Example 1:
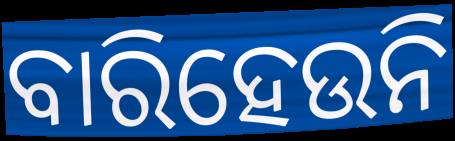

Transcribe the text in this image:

ବାରିହେଉନି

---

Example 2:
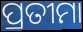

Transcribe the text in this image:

ପ୍ରତୀମା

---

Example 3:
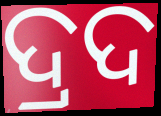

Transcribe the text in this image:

ଦ୍ରଦ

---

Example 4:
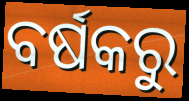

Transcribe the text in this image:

ବର୍ଷକରୁ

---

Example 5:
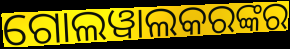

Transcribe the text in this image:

ଗୋଲୱାଲକରଙ୍କର